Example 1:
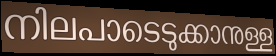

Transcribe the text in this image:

നിലപാടെടുക്കാനുള്ള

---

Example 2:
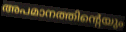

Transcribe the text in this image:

അപമാനത്തിന്റെയും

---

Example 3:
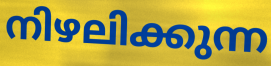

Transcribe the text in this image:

നിഴലിക്കുന്ന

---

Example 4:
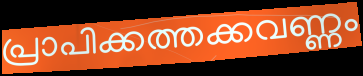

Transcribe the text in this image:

പ്രാപിക്കത്തക്കവണ്ണം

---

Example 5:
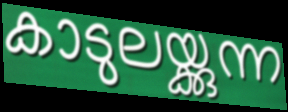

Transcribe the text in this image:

കാടുലയ്ക്കുന്ന